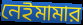
নেইমামার